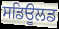
ਸਡਿਊਲਡ